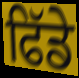
ਫਿੱਡੇ